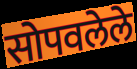
सोपवलेले